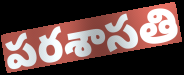
పరశాసతి